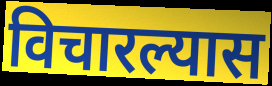
विचारल्यास